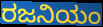
ರಜನಿಯಂ